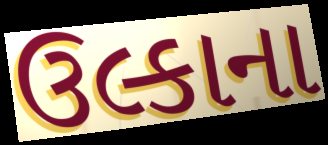
ઉલ્કાના